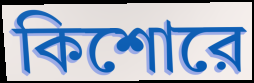
কিশোরে